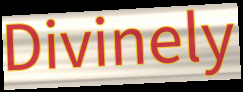
Divinely